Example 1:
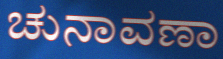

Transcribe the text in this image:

ಚುನಾವಣಾ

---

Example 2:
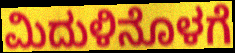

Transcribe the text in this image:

ಮಿದುಳಿನೊಳಗೆ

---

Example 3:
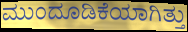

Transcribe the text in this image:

ಮುಂದೂಡಿಕೆಯಾಗಿತ್ತು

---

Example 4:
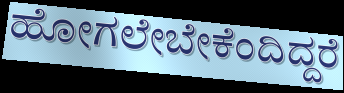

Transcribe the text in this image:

ಹೋಗಲೇಬೇಕೆಂದಿದ್ದರೆ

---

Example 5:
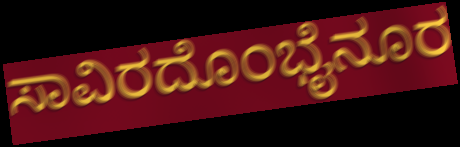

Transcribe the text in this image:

ಸಾವಿರದೊಂಭೈನೂರ